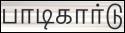
பாடிகார்டு